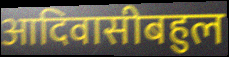
आदिवासीबहुल